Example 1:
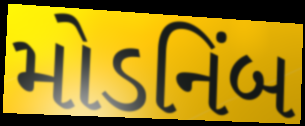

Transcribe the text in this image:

મોડનિંબ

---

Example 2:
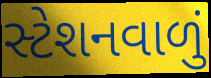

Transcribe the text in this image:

સ્ટેશનવાળું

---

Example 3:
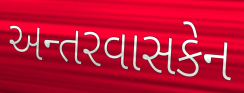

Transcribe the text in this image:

અન્તરવાસકેન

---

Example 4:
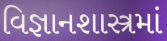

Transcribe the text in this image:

વિજ્ઞાનશાસ્ત્રમાં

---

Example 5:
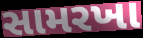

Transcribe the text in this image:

સામરખા